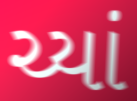
ચ્યાં